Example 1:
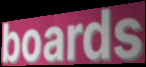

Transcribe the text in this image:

boards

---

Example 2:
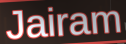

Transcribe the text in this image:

Jairam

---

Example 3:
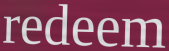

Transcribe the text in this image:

redeem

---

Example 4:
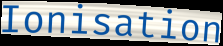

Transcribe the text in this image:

Ionisation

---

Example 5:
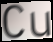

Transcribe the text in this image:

Cu